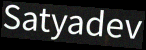
Satyadev